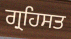
ਗ੍ਰਹਿਸਤ